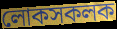
লোকসকলক